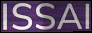
ISSAI